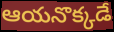
ఆయనొక్కడే